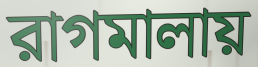
রাগমালায়